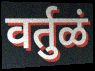
वर्तुळं